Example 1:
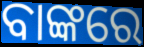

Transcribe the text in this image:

ବାଙ୍କରେ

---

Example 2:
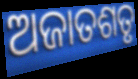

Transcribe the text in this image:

ଅଜାତଶତୃ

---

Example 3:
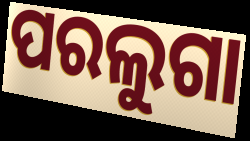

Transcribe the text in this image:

ପରଲୁଗା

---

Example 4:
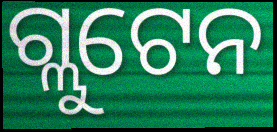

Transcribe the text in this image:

ଗ୍ଲୁଟେନ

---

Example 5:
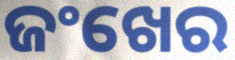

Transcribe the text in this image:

ଜଂଖେର